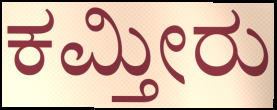
ಕಮ್ತೀರು